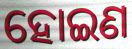
ହୋଇଣ